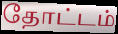
தோட்டம்